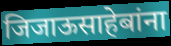
जिजाऊसाहेबांना